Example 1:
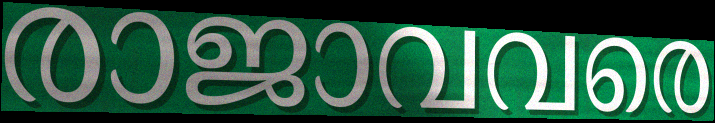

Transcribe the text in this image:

രാജാവവരെ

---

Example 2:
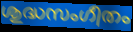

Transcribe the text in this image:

ശുദ്ധസംഗീതം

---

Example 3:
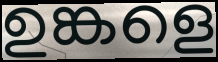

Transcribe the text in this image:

ഉങ്കളെ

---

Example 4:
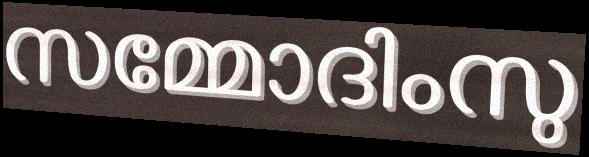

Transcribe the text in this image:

സമ്മോദിംസു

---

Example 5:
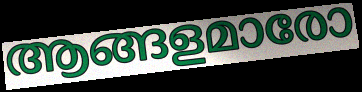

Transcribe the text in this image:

ആങ്ങളമാരോ